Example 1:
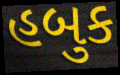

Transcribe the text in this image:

હબુક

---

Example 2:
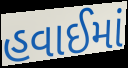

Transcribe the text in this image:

હવાઈમાં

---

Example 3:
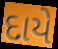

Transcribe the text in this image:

દાયે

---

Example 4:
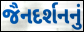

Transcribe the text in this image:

જૈનદર્શનનું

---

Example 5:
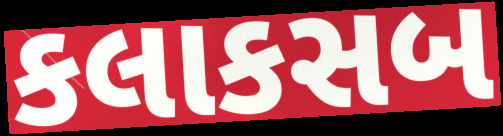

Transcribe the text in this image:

કલાકસબ